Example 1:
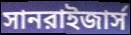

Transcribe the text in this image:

সানরাইজার্স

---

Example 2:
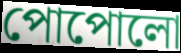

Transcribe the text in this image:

পোপোলো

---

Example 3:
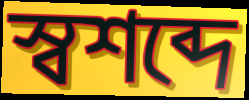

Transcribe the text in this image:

স্বশব্দে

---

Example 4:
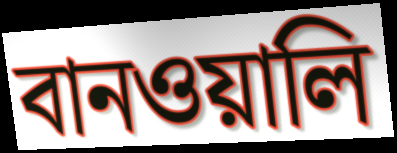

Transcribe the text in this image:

বানওয়ালি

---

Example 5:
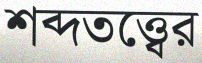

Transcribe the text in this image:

শব্দতত্ত্বের